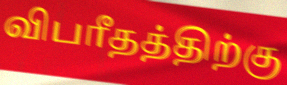
விபரீதத்திற்கு